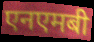
एनएमबी